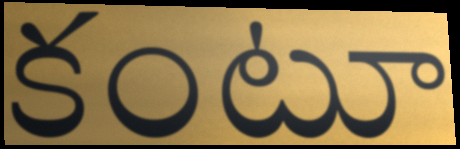
కంటూ